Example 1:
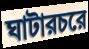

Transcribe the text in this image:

ঘাটারচরে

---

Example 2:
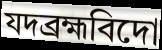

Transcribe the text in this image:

যদব্রহ্মবিদো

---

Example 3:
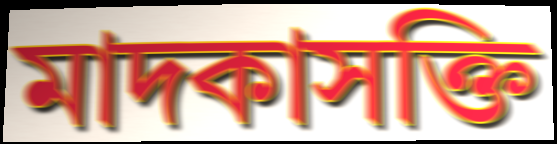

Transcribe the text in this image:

মাদকাসক্তি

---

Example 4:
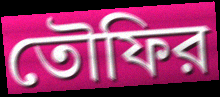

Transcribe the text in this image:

তৌফির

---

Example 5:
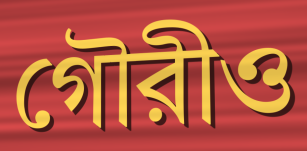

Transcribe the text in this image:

গৌরীও